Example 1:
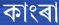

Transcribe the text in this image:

কাংৰা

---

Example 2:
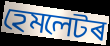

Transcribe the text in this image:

হেমলেটৰ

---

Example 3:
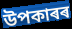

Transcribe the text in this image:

উপকাৰৰ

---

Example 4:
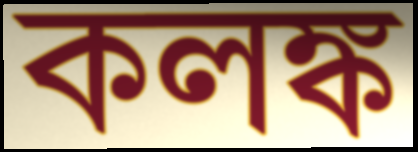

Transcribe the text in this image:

কলঙ্ক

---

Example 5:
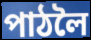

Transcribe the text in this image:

পাঠলৈ